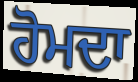
ਹੋਮਦਾ